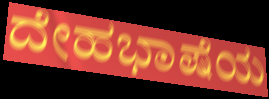
ದೇಹಭಾಷೆಯ